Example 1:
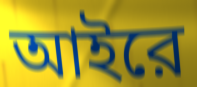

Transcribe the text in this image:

আইরে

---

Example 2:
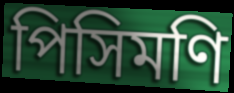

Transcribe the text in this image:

পিসিমণি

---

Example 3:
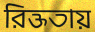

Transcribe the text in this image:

রিক্ততায়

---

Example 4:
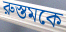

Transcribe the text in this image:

রুস্তমকে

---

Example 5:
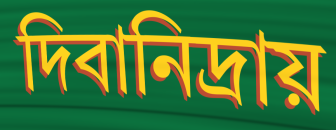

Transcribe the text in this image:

দিবানিদ্রায়